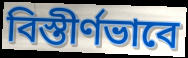
বিস্তীর্ণভাবে